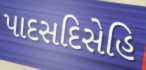
પાદસદિસેહિ